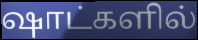
ஷாட்களில்